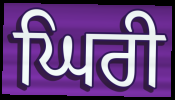
ਘਿਰੀ